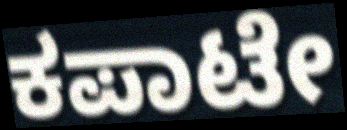
ಕಪಾಟೇ